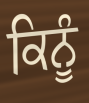
ਕਿਨੂੰ